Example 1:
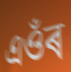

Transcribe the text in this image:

এওঁৰ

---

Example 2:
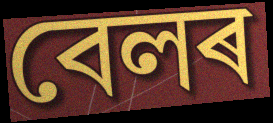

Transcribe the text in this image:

বেলৰ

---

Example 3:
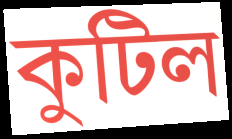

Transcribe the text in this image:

কুটিল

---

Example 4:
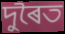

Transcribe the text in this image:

দুৰৈত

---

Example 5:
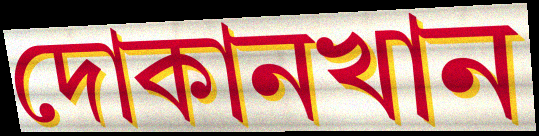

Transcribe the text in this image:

দোকানখান